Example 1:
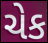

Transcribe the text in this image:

ચેક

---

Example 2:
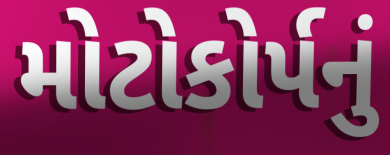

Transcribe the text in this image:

મોટોકોર્પનું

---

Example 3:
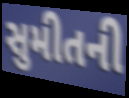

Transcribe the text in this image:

સુમીતની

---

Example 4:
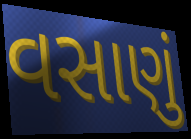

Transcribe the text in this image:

વસાણું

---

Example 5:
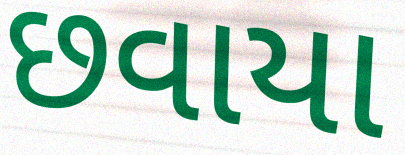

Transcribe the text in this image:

છવાયા